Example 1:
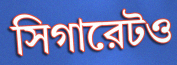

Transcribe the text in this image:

সিগারেটও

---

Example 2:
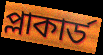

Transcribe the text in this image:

প্লাকার্ড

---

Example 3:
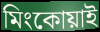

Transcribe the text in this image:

মিংকোয়াই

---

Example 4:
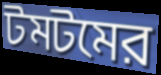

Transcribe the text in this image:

টমটমের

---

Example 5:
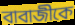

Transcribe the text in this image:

বাবাজীকে